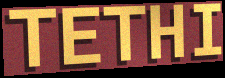
TETHI